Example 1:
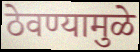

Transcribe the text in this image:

ठेवण्यामुळे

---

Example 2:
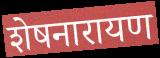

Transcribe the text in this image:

शेषनारायण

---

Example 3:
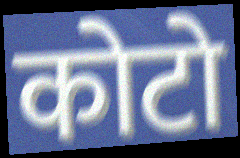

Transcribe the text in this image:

कोटो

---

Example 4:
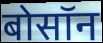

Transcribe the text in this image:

बोसॉन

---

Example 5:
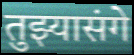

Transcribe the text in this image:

तुझ्यासंगे